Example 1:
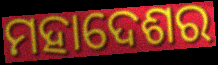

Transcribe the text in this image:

ମହାଦେଶର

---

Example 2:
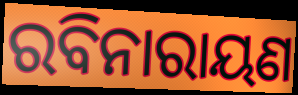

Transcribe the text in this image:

ରବିନାରାୟଣ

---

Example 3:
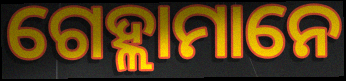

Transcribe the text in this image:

ଗେହ୍ଲାମାନେ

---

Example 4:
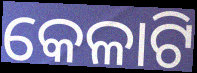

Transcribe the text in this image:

କେଳାଟି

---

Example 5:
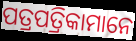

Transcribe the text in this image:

ପତ୍ରପତ୍ରିକାମାନେ